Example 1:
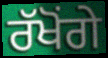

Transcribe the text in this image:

ਰੱਖੋਂਗੇ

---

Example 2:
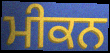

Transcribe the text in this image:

ਮੀਕਨ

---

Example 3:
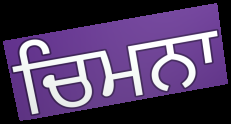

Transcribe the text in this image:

ਚਿਮਨਾ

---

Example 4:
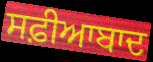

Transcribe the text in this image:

ਸਫ਼ੀਆਬਾਦ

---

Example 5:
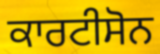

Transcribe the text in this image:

ਕਾਰਟੀਸੋਨ